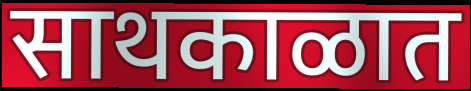
साथकाळात